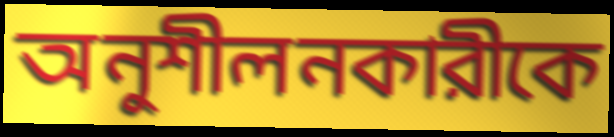
অনুশীলনকারীকে